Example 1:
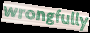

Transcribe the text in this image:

wrongfully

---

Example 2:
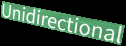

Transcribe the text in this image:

Unidirectional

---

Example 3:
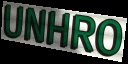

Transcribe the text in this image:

UNHRO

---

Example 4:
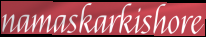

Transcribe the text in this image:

namaskarkishore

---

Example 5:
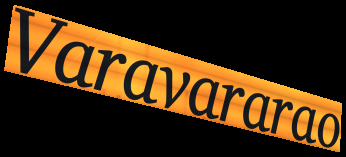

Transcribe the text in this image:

Varavararao